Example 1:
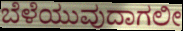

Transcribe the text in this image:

ಬೆಳೆಯುವುದಾಗಲೀ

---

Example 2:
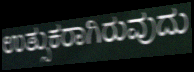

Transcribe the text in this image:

ಉತ್ಸುಕರಾಗಿರುವುದು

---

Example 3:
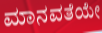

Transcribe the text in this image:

ಮಾನವತೆಯೇ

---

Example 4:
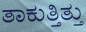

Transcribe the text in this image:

ತಾಕುತ್ತಿತ್ತು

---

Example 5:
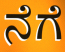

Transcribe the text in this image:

ನೆಗೆ